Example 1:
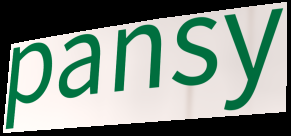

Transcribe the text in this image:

pansy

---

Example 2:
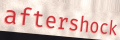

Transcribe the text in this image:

aftershock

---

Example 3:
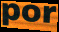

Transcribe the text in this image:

por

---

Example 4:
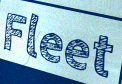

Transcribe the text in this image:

Fleet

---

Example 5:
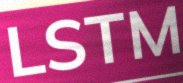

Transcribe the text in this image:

LSTM